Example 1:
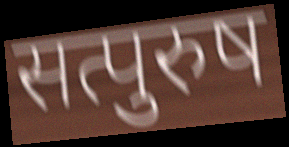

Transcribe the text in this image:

सत्पुरुष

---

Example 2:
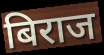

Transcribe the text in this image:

बिराज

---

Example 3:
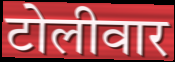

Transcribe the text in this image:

टोलीवार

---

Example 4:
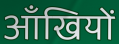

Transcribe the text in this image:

आँखियों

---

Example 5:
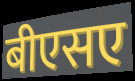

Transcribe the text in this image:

बीएसए